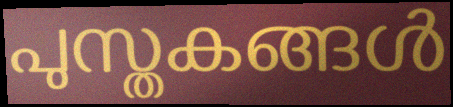
പുസ്തകങ്ങൾ